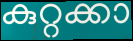
കുറ്റക്കാ